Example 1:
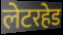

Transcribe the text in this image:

लेटरहेड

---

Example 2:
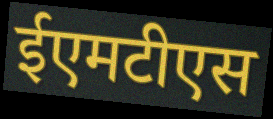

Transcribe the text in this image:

ईएमटीएस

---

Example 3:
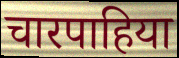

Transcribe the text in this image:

चारपाहिया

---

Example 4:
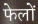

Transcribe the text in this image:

फेलों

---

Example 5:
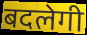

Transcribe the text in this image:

बदलेगी